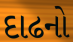
દાઢનો